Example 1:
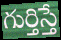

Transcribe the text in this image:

గుర్తిస్తే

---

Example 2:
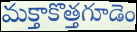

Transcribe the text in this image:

మక్తాకొత్తగూడెం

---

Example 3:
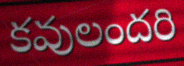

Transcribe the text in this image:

కవులందరి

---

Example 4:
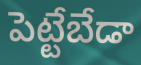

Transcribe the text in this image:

పెట్టేబేడా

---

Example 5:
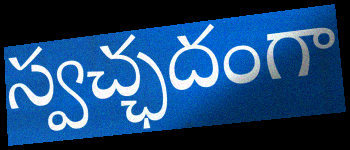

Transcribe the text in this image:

స్వచ్ఛదంగా